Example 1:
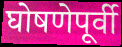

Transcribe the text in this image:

घोषणेपूर्वी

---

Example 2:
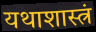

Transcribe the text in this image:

यथाशास्त्रं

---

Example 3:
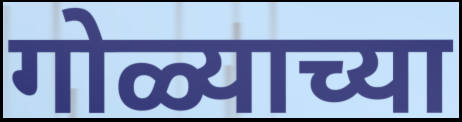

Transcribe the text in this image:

गोळ्याच्या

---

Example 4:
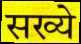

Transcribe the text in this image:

सख्ये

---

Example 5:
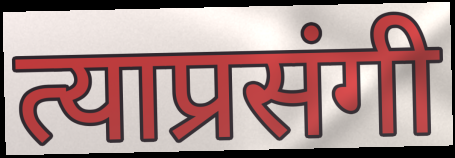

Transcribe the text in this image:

त्याप्रसंगी